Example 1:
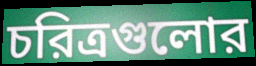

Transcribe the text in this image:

চরিত্রগুলোর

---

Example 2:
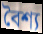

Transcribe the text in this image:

বৈশ্য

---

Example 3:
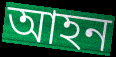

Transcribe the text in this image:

আহন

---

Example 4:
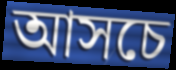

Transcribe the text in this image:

আসচে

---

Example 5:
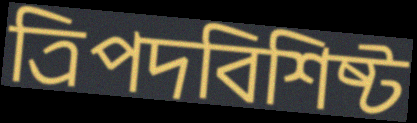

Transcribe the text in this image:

ত্রিপদবিশিষ্ট